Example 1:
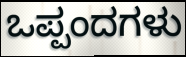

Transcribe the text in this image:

ಒಪ್ಪಂದಗಳು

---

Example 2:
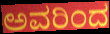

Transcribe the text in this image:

ಅವರಿಂದ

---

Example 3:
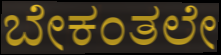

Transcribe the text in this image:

ಬೇಕಂತಲೇ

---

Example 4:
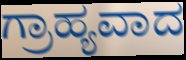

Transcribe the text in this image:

ಗ್ರಾಹ್ಯವಾದ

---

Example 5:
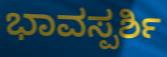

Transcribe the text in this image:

ಭಾವಸ್ಪರ್ಶಿ